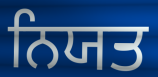
ਨਿਯਤ